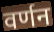
वर्णन